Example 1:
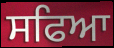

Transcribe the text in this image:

ਸਫਿਆ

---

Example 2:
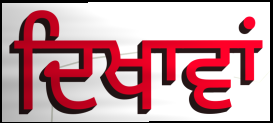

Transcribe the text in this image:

ਦਿਖਾਵਾਂ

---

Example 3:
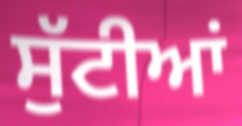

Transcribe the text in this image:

ਸੁੱਟੀਆਂ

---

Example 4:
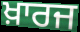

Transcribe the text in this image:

ਖ਼ਾਰਜ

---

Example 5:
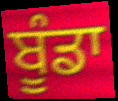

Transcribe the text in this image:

ਬੂੰਡਾ